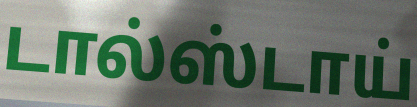
டால்ஸ்டாய்